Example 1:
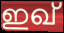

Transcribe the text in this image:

ഇഖ്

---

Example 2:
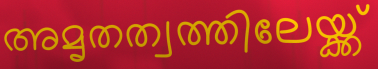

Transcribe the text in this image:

അമൃതത്വത്തിലേയ്ക്ക്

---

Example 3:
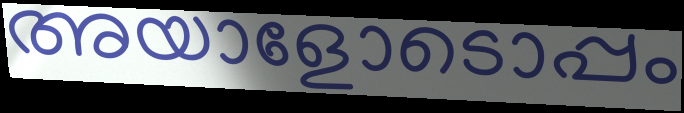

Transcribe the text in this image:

അയാളോടൊപ്പം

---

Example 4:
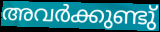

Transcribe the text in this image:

അവർക്കുണ്ടു്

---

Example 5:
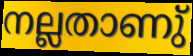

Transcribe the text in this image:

നല്ലതാണു്